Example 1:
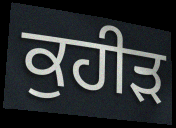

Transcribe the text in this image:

ਕੁਹੀੜ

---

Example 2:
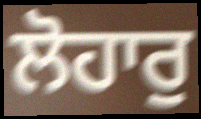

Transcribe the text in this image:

ਲੋਹਾਰੁ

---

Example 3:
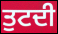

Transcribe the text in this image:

ਤੁਟਦੀ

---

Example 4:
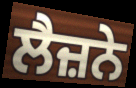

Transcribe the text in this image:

ਲੈਜ਼ਨੇ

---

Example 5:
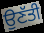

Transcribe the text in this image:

ਉਣੱਤੀ